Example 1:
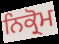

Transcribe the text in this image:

ਨਿਕ੍ਰੋਮ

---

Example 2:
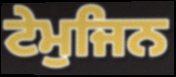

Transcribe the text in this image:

ਟੇਮੁਜਿਨ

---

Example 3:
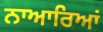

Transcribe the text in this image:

ਨਾਆਰਿਆਂ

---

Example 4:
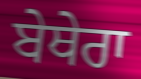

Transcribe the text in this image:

ਬੇਥੇਰਾ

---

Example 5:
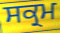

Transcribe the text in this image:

ਸਕ੍ਰਮ